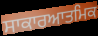
ਸਾਕਾਰਆਤਮਿਕ